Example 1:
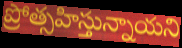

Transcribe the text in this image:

ప్రోత్సహిస్తున్నాయని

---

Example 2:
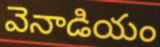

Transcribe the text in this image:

వెనాడియం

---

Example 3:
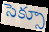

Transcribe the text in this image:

సెక్సూ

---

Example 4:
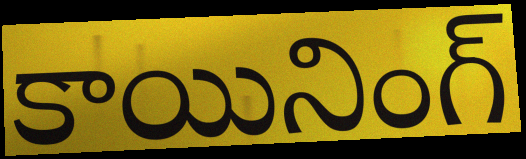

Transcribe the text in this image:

కాయినింగ్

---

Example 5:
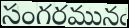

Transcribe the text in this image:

సంగరమునఁ